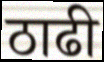
ठाढी